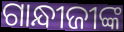
ଗାନ୍ଧୀଜୀଙ୍କ